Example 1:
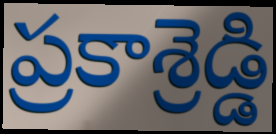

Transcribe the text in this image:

ప్రకాశ్రెడ్డి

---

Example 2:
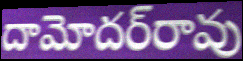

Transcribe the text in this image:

దామోదర్‌రావు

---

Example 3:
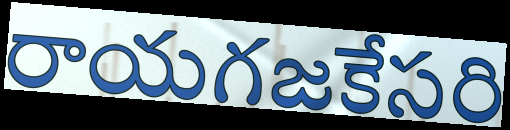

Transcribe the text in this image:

రాయగజకేసరి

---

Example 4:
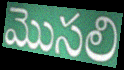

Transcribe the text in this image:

మొసలి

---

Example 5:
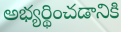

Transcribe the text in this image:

అభ్యర్థించడానికి